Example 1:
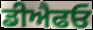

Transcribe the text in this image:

ਡੀਐਫਓ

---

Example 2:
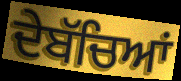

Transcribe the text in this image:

ਦੇਬੱਚਿਆਂ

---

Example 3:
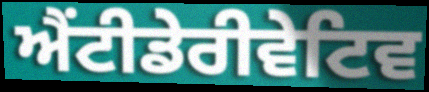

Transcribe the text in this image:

ਐਂਟੀਡੇਰੀਵੇਟਿਵ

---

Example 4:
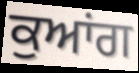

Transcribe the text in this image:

ਕੁਆਂਗ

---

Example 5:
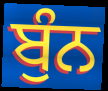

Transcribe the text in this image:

ਬੁੰਨ